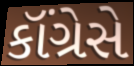
કૉંગ્રેસે